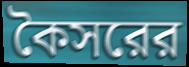
কৈসরের